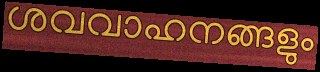
ശവവാഹനങ്ങളും